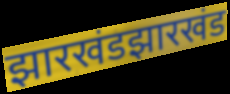
झारखंडझारखंड